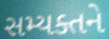
સમ્યક્તને